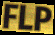
FLP